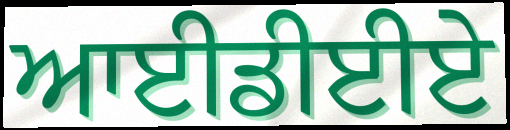
ਆਈਡੀਈਏ